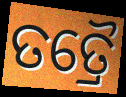
ତତ୍ରୈ